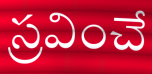
స్రవించే